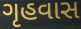
ગૃહવાસ